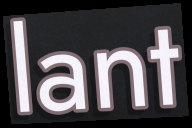
lant